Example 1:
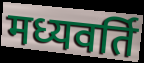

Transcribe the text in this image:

मध्यवर्ति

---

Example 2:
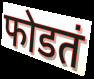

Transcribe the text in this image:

फोडतं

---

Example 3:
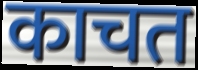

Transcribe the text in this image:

काचत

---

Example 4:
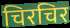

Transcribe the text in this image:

चिरचिर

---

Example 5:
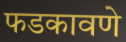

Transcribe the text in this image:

फडकावणे